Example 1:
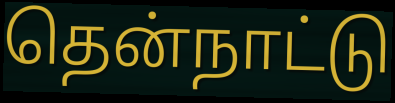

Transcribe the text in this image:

தென்நாட்டு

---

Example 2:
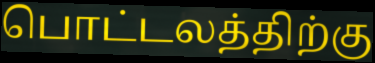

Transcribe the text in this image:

பொட்டலத்திற்கு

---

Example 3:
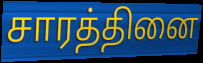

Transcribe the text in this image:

சாரத்தினை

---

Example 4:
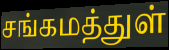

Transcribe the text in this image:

சங்கமத்துள்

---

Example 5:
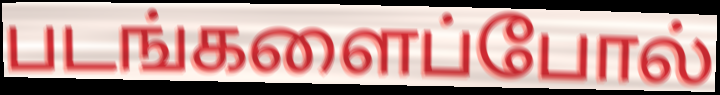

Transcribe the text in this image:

படங்களைப்போல்